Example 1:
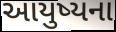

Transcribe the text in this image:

આયુષ્યના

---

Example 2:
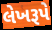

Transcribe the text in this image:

લેખરૂપે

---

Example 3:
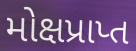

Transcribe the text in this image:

મોક્ષપ્રાપ્ત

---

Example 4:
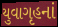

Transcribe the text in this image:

યુવાગૃહનાં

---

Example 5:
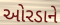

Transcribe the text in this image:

ઓરડાને